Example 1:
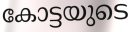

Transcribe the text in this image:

കോട്ടയുടെ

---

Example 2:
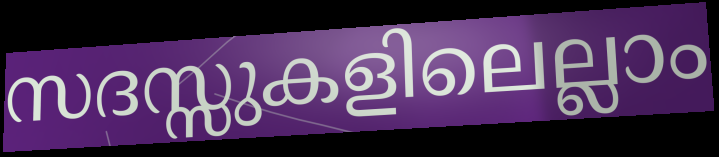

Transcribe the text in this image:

സദസ്സുകളിലെല്ലാം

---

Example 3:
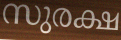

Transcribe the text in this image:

സുരക്ഷ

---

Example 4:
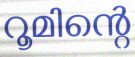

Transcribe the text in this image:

റൂമിന്റെ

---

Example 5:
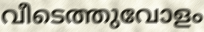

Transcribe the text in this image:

വീടെത്തുവോളം